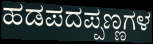
ಹಡಪದಪ್ಪಣ್ಣಗಳ